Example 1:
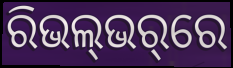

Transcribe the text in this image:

ରିଭଲ୍‌ଭର୍‌ରେ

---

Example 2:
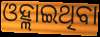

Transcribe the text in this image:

ଓହ୍ଲାଇଥିବା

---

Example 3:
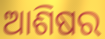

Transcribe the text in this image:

ଆଶିଷର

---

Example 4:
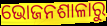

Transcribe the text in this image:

ଭୋଜନଶାଳାରୁ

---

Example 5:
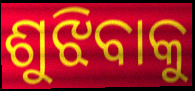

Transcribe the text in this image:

ଶୁଝିବାକୁ